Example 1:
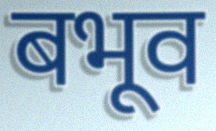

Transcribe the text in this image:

बभूव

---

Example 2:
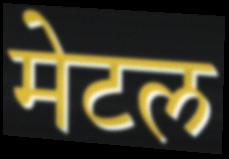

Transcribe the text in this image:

मेटल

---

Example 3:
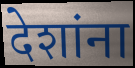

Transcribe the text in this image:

देशांना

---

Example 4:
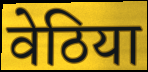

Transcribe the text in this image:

वेठिया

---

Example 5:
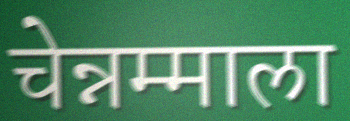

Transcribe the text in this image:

चेन्नम्माला